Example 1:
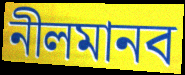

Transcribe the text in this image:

নীলমানব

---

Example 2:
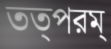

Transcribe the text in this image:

তত্পরম্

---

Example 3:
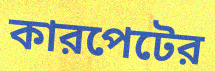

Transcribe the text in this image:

কারপেটের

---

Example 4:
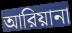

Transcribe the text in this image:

আরিয়ানা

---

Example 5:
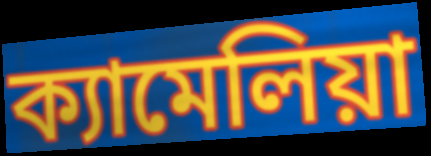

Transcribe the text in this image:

ক্যামেলিয়া